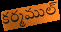
కర్మముల్